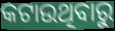
କଟାଉଥିବାରୁ